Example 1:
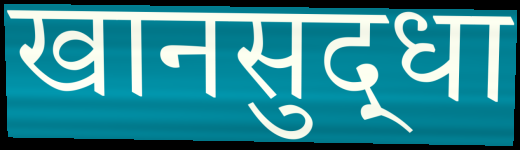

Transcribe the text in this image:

खानसुद्धा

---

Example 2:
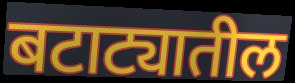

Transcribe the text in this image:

बटाट्यातील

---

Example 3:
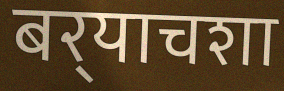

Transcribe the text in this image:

बर्‍याचशा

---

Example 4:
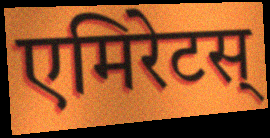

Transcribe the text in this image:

एमिरेटस्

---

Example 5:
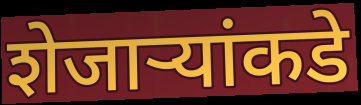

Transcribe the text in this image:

शेजाऱ्यांकडे